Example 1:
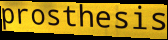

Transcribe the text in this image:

prosthesis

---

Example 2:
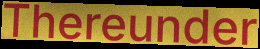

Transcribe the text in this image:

Thereunder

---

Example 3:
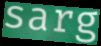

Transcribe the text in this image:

sarg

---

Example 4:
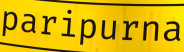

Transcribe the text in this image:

paripurna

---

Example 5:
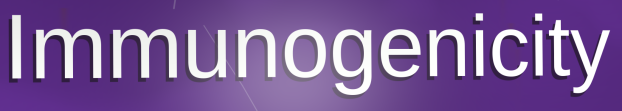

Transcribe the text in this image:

Immunogenicity